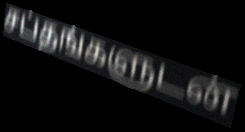
சப்தங்களுடன்